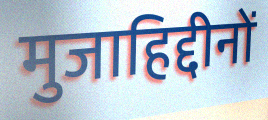
मुजाहिद्दीनों